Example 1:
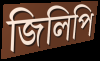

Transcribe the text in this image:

জিলিপি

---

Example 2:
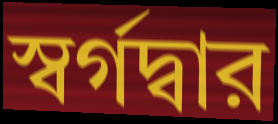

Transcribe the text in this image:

স্বর্গদ্বার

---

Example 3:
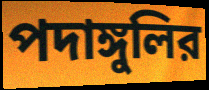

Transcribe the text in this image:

পদাঙ্গুলির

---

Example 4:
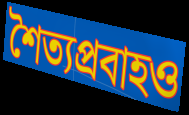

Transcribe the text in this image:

শৈত্যপ্রবাহও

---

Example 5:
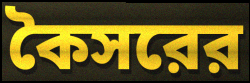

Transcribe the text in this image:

কৈসরের